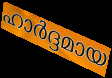
ഹാർദ്ദമായ